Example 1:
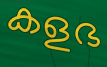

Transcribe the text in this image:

കളഭ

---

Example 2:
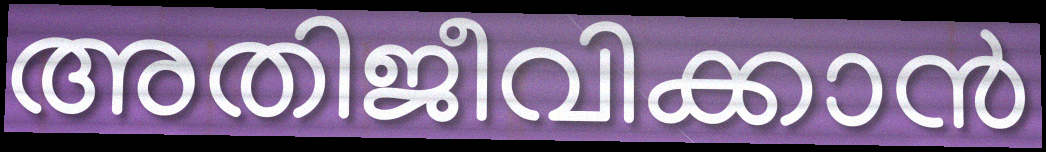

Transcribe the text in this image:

അതിജീവിക്കാൻ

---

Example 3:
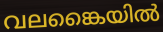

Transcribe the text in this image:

വലങ്കൈയിൽ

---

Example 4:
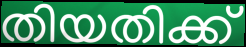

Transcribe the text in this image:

തിയതിക്ക്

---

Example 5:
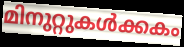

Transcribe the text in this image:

മിനുറ്റുകൾക്കകം